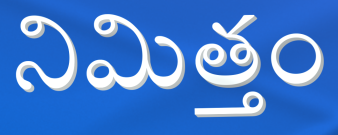
నిమిత్తం